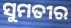
ସୁମତୀର